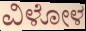
ವಿಳೋಳ